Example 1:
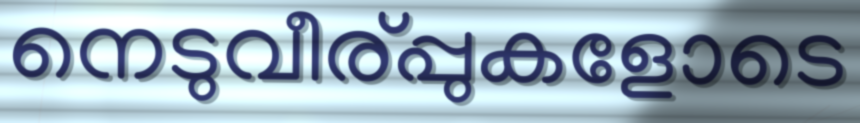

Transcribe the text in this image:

നെടുവീര്പ്പുകളോടെ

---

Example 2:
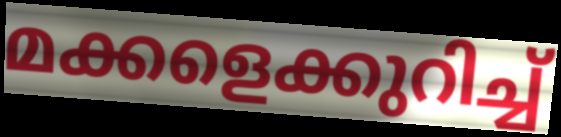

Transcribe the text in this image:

മക്കളെക്കുറിച്ച്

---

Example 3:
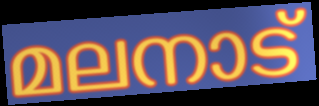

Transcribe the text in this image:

മലനാട്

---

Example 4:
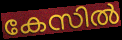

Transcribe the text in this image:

കേസിൽ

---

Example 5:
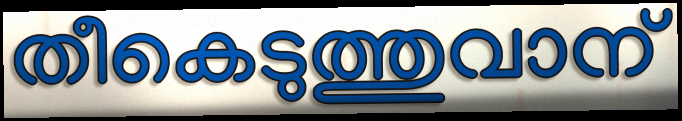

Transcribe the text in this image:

തീകെടുത്തുവാന്